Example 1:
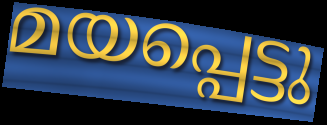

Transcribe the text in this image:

മയപ്പെട്ടു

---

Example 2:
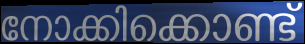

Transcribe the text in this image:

നോക്കിക്കൊണ്ട്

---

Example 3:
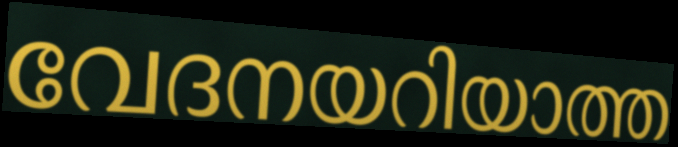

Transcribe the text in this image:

വേദനയറിയാത്ത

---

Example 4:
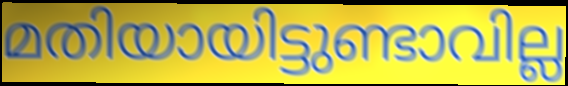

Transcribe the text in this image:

മതിയായിട്ടുണ്ടാവില്ല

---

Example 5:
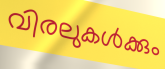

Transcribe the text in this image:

വിരലുകൾക്കും